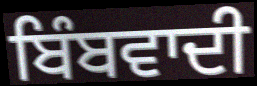
ਬਿੰਬਵਾਦੀ